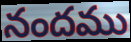
నందము